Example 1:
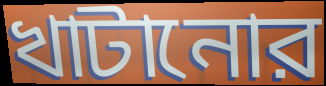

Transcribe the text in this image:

খাটানোর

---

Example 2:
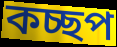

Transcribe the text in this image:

কচ্ছপ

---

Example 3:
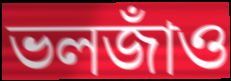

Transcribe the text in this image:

ভলজাঁও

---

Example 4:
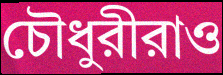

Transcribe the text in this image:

চৌধুরীরাও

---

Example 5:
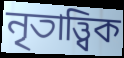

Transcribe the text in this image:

নৃতাত্ত্বিক